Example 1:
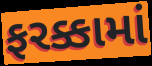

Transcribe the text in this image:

ફરક્કામાં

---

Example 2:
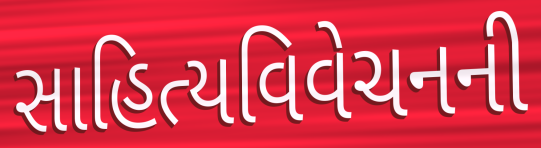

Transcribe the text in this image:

સાહિત્યવિવેચનની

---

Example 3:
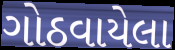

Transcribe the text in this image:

ગોઠવાયેલા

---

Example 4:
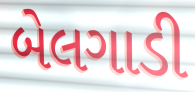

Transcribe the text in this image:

બેલગાડી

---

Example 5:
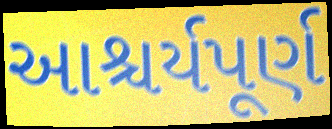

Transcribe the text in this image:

આશ્ચર્યપૂર્ણ